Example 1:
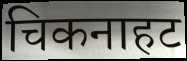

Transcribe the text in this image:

चिकनाहट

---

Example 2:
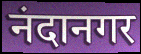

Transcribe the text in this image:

नंदानगर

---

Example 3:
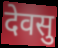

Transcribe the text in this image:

देवसु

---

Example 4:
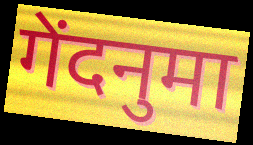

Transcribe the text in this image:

गेंदनुमा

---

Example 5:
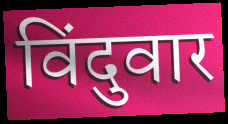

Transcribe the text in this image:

विंदुवार